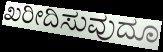
ಖರೀದಿಸುವುದೂ